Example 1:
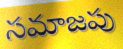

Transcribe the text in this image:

సమాజపు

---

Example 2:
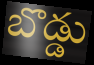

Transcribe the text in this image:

బొడ్డు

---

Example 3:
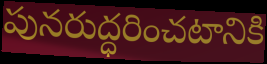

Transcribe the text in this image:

పునరుద్ధరించటానికి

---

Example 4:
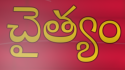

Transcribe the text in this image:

చైత్యం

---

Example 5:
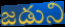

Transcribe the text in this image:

జడుని